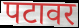
पटावर